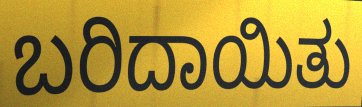
ಬರಿದಾಯಿತು